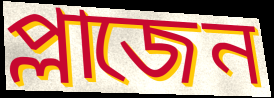
প্লাজেন